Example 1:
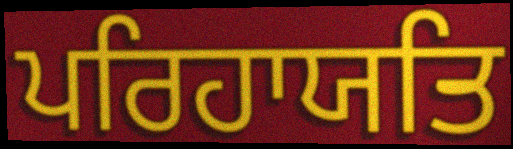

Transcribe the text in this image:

ਪਰਿਹਾਯਤਿ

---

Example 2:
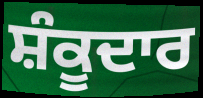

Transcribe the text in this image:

ਸ਼ੰਕੂਦਾਰ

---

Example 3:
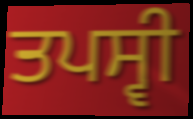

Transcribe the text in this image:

ਤਪਸ੍ਵੀ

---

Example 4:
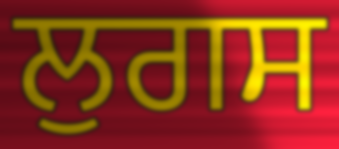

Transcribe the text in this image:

ਲੁਗਸ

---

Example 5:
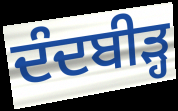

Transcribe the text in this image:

ਦੰਦਬੀੜ੍ਹ